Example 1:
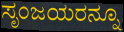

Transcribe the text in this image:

ಸೃಂಜಯರನ್ನೂ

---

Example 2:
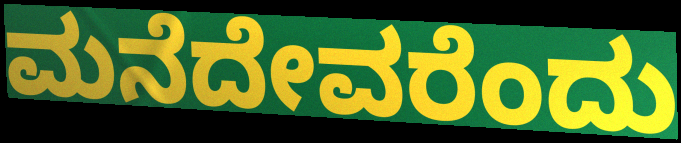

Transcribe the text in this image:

ಮನೆದೇವರೆಂದು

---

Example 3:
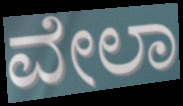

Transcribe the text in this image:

ವೇಲಾ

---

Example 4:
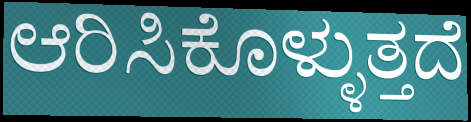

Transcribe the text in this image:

ಆರಿಸಿಕೊಳ್ಳುತ್ತದೆ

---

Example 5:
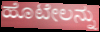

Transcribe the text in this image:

ಹೊಟೇಲನ್ನು